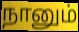
நானும்